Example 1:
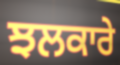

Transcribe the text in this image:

ਝਲਕਾਰੇ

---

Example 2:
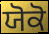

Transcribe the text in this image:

ਯੋਕੋ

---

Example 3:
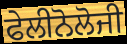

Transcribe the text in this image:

ਫੇਲੀਨੋਲੋਜੀ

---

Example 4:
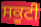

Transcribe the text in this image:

ਸਕੂਟੀ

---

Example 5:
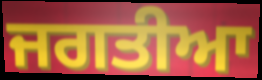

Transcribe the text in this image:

ਜਗਤੀਆ